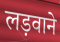
लड़वाने